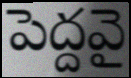
పెద్దవై